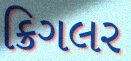
ક્રિગલર